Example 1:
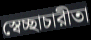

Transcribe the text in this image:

স্বেচ্ছাচারীতা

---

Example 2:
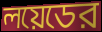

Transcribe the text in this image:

লয়েডের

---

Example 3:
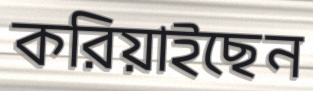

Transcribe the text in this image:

করিয়াইছেন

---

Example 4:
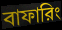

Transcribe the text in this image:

বাফারিং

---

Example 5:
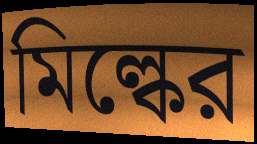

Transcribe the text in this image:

মিল্কের